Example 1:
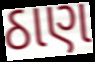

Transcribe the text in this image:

ઠાણ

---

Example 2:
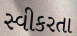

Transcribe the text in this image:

સ્વીકરતા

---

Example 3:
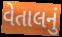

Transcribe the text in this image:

વેતાલનું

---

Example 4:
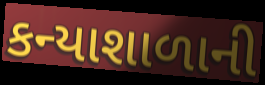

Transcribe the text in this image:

કન્યાશાળાની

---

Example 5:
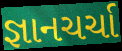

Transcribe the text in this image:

જ્ઞાનચર્ચા